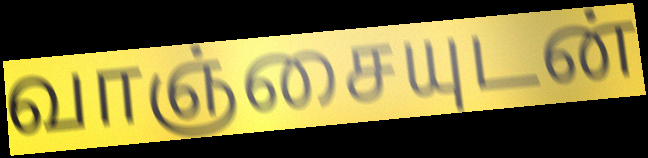
வாஞ்சையுடன்